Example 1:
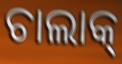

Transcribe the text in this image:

ଚାଲାକ୍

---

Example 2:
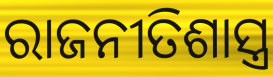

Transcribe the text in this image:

ରାଜନୀତିଶାସ୍ତ୍ର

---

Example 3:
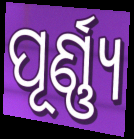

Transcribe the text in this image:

ପୂର୍ଣ୍ଣ୍ୟ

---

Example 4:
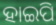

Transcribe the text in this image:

ହାଇପି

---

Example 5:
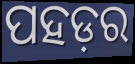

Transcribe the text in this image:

ପହଡ଼ର